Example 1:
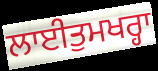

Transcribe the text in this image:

ਲਾਈਤੁਮਖਰ੍ਹਾ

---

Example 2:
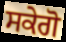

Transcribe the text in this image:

ਸਕੇਗੋ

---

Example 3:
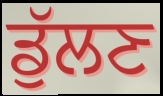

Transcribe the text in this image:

ਡੁੱਲਣ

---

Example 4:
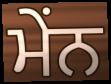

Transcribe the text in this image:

ਮੇਂਨ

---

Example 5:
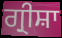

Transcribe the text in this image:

ਗ੍ਰੀਸ਼ਾ